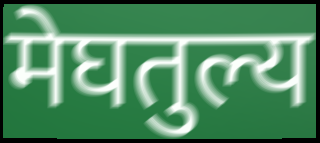
मेघतुल्य